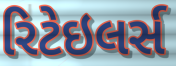
રિટેઇલર્સ